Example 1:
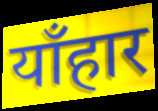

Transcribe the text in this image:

याँहार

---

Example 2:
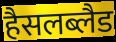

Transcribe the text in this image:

हैसलब्लैड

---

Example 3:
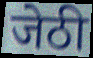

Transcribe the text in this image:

जेठी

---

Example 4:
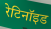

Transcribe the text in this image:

रेटिनॉइड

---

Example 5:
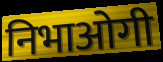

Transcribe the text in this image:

निभाओगी